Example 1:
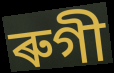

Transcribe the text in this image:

ৰুগী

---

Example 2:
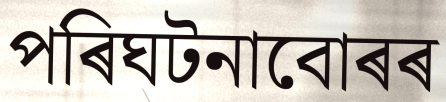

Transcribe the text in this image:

পৰিঘটনাবোৰৰ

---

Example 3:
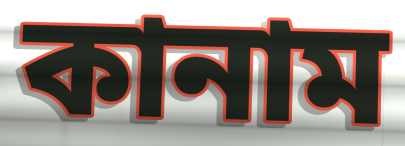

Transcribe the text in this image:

কানাম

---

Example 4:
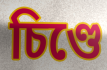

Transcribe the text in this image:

চিণ্ডে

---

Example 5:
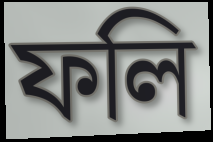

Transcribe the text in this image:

ফলি